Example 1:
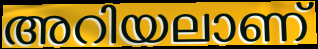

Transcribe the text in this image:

അറിയലാണ്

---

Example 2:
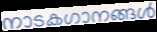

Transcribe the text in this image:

നാടകഗാനങ്ങൾ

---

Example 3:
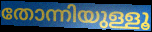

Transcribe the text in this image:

തോന്നിയുള്ളൂ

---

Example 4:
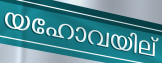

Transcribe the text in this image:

യഹോവയില്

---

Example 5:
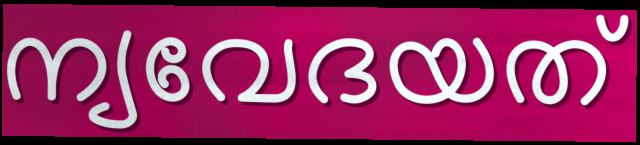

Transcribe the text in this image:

ന്യവേദയത്